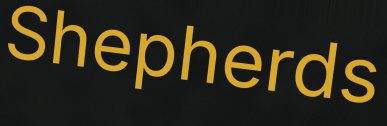
Shepherds